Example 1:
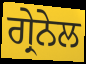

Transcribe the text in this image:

ਗ੍ਰੇਨੇਲ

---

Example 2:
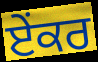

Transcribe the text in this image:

ਏੰਕਰ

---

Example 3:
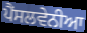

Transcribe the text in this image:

ਪੈਂਸਲਵੇਨੀਆ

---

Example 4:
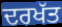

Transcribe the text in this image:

ਦਰਖੱਤ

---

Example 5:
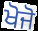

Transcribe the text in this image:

ਖੋਜੋ